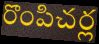
రొంపిచర్ల